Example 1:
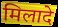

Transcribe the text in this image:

मिलादे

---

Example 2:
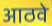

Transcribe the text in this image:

आठवे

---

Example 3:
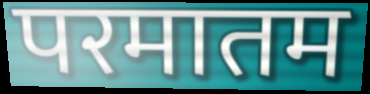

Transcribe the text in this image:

परमातम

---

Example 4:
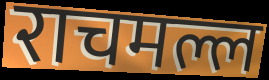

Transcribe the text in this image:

राचमल्ल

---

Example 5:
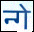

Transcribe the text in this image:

न्गे